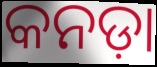
କନଡ଼ା